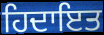
ਹਿਦਾਇਤ